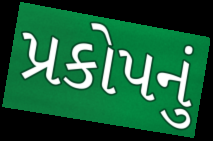
પ્રકોપનું